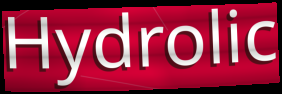
Hydrolic